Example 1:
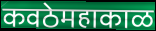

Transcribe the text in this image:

कवठेमहाकाळ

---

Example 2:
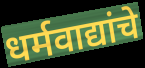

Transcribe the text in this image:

धर्मवाद्यांचे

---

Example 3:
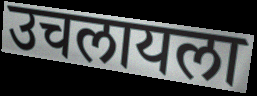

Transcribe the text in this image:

उचलायला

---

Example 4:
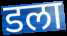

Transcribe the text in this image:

डला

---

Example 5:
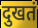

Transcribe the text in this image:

दुखतं